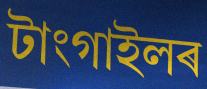
টাংগাইলৰ